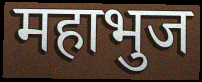
महाभुज